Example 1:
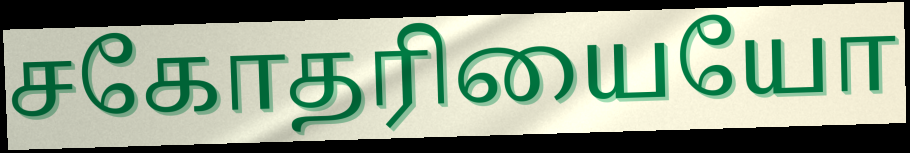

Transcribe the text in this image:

சகோதரியையோ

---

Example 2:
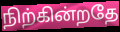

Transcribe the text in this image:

நிற்கின்றதே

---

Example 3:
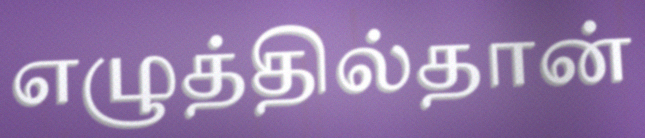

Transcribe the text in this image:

எழுத்தில்தான்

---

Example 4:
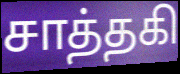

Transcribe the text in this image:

சாத்தகி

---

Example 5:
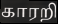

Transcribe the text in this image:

காரறி